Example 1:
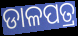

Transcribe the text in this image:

ଡାଳପତ୍ର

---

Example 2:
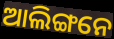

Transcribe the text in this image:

ଆଲିଙ୍ଗନେ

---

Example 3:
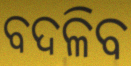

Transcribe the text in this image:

ବଦଳିବ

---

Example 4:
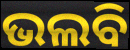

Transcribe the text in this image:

ଭଲବି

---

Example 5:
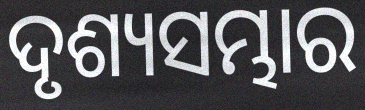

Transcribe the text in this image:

ଦୃଶ୍ୟସମ୍ଭାର